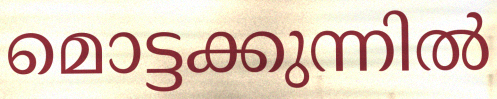
മൊട്ടക്കുന്നിൽ